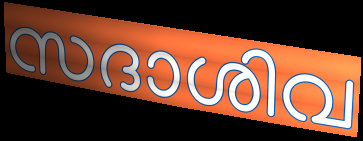
സദാശിവ